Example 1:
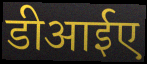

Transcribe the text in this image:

डीआईए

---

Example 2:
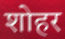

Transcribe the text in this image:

शोहर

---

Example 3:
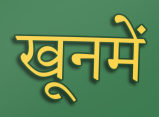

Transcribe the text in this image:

खूनमें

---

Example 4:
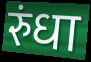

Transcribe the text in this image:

रुंधा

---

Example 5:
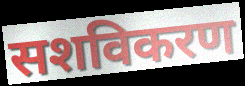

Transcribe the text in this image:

सशविकरण